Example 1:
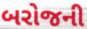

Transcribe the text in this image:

બરોજની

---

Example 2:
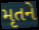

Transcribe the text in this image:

મૃતને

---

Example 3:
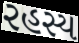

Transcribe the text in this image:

રહસ્ય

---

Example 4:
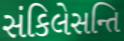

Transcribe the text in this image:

સંકિલેસન્તિ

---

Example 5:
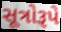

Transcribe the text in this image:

સૂત્રોરૂપે